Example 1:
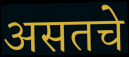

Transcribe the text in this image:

असतचे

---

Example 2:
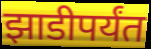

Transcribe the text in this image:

झाडीपर्यंत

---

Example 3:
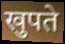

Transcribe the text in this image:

खुपते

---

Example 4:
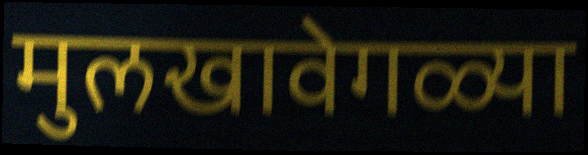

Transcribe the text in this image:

मुलखावेगळ्या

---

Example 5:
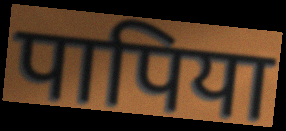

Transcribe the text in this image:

पापिया